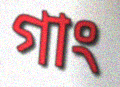
গাং